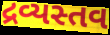
દ્રવ્યસ્તવ